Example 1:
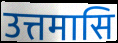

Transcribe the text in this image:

उत्तमासि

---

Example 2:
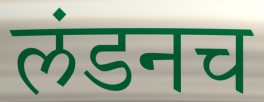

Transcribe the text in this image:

लंडनच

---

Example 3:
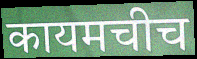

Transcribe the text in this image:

कायमचीच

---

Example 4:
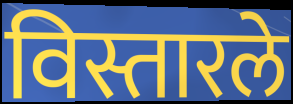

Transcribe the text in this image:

विस्तारले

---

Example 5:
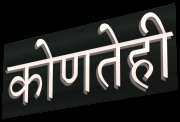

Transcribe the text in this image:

कोणतेही